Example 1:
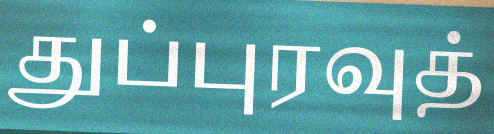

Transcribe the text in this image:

துப்புரவுத்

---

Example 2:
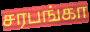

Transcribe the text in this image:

சரபங்கா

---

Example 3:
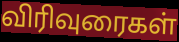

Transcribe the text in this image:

விரிவுரைகள்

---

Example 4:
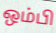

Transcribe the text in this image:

ஒம்பி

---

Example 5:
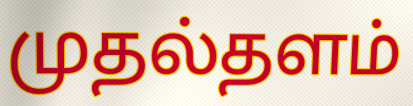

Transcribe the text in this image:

முதல்தளம்